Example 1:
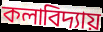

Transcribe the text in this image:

কলাবিদ্যায়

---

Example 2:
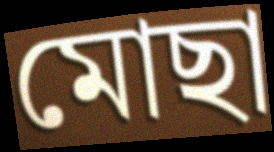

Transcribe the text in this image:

মোছা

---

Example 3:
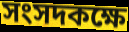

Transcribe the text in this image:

সংসদকক্ষে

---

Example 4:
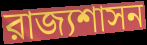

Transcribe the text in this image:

রাজ্যশাসন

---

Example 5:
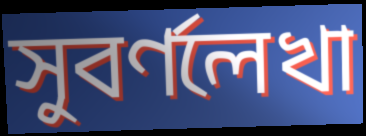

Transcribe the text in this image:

সুবর্ণলেখা